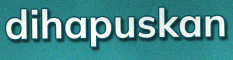
dihapuskan